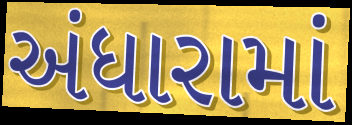
અંધારામાં